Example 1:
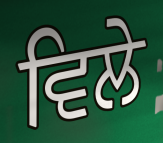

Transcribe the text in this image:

ਵਿਲੇ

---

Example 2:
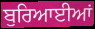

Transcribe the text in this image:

ਬੁਰਿਆਈਆਂ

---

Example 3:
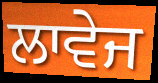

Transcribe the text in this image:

ਲਾਵੇਜ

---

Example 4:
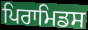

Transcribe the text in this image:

ਪਿਰਾਮਿਡਸ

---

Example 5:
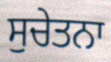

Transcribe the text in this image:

ਸੁਚੇਤਨਾ